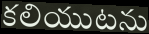
కలియుటను